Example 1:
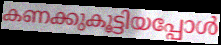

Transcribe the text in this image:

കണക്കുകൂട്ടിയപ്പോൾ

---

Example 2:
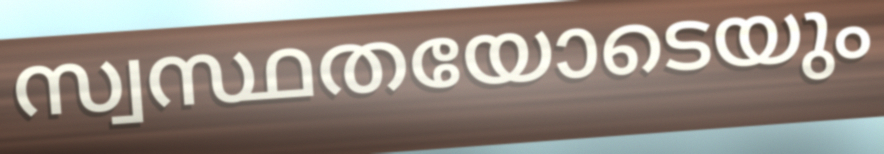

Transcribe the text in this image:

സ്വസ്ഥതയോടെയും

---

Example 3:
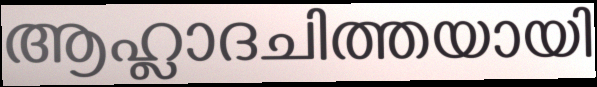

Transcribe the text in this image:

ആഹ്ലാദചിത്തയായി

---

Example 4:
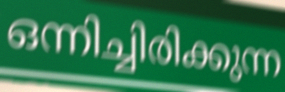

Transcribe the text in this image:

ഒന്നിച്ചിരിക്കുന്ന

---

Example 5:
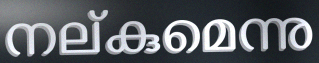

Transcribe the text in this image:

നല്‌കുമെന്നു